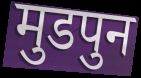
मुडपुन